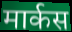
मार्कस